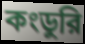
কংডুরি